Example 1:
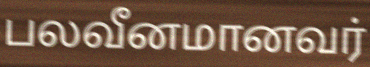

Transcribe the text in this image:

பலவீனமானவர்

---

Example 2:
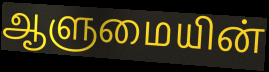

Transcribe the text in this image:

ஆளுமையின்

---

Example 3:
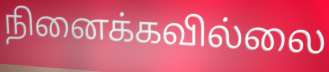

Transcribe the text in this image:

நினைக்கவில்லை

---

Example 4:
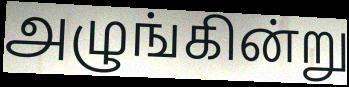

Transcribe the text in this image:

அழுங்கின்று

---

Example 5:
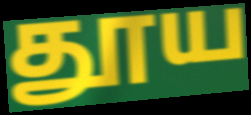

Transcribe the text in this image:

தூய